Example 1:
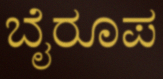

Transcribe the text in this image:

ಬೈರೂಪ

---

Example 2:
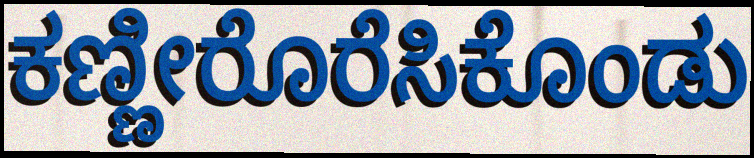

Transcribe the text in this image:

ಕಣ್ಣೀರೊರೆಸಿಕೊಂಡು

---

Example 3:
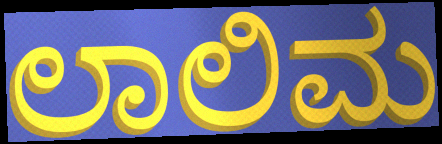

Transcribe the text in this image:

ಲಾಲಿಮ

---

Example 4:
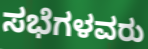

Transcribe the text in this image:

ಸಭೆಗಳವರು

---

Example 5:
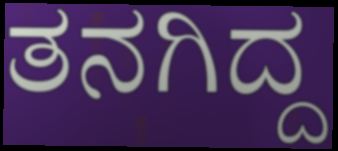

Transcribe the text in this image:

ತನಗಿದ್ದ